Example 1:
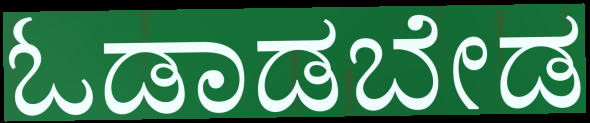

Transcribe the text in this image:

ಓಡಾಡಬೇಡ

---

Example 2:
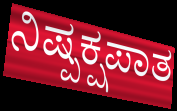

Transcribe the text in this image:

ನಿಷ್ಪಕ್ಷಪಾತ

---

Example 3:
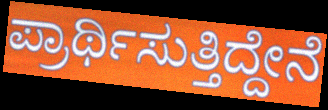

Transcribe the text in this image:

ಪ್ರಾರ್ಥಿಸುತ್ತಿದ್ದೇನೆ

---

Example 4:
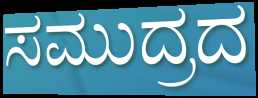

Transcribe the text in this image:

ಸಮುದ್ರದ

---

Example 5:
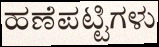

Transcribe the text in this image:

ಹಣೆಪಟ್ಟಿಗಳು